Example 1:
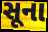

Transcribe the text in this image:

સૂના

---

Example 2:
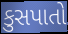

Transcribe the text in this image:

કુસપાતો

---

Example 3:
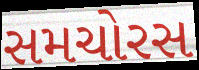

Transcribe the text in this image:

સમચોરસ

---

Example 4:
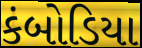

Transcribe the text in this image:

કંબોડિયા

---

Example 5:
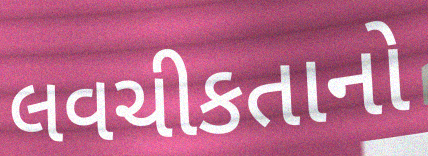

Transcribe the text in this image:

લવચીકતાનો